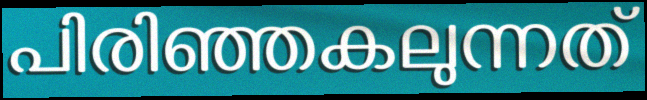
പിരിഞ്ഞകലുന്നത്